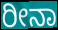
ರೀನಾ